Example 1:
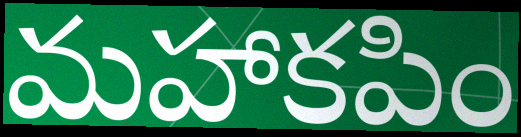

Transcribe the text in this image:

మహాకపిం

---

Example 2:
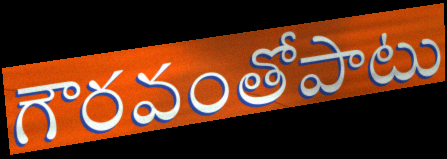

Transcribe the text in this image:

గౌరవంతోపాటు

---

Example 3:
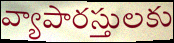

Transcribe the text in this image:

వ్యాపారస్తులకు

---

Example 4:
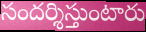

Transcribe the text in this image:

సందర్శిస్తుంటారు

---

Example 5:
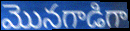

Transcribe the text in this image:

మొనగాడిగా